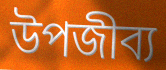
উপজীব্য